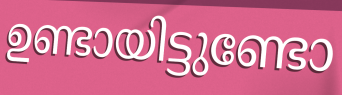
ഉണ്ടായിട്ടുണ്ടോ